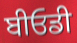
ਬੀਓਡੀ